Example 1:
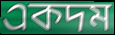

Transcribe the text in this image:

একদম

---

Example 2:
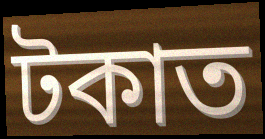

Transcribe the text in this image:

টকাত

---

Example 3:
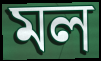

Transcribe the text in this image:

মল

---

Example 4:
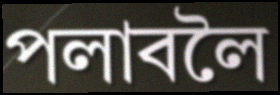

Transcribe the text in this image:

পলাবলৈ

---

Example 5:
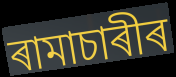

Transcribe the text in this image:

ৰামাচাৰীৰ